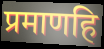
प्रमाणहि